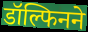
डॉल्फिनने